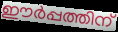
ഈർപ്പത്തിന്